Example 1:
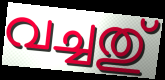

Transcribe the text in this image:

വച്ചതു്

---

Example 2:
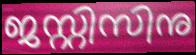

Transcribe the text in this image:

ജസ്റ്റിസിനു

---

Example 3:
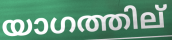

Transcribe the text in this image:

യാഗത്തില്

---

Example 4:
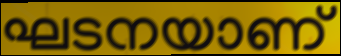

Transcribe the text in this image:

ഘടനയാണ്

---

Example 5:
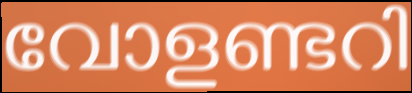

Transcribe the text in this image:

വോളണ്ടറി